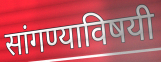
सांगण्याविषयी